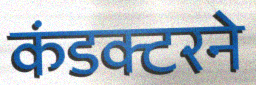
कंडक्टरने